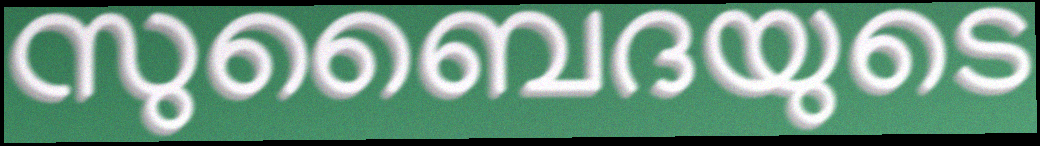
സുബൈദയുടെ